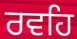
ਰਵਹਿ